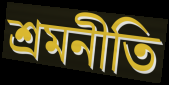
শ্রমনীতি